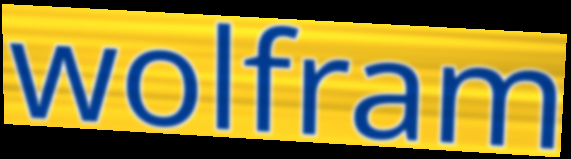
wolfram